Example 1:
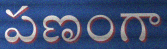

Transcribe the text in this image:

పణంగా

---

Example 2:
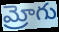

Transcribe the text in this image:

మ్రోగు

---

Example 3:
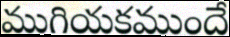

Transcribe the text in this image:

ముగియకముందే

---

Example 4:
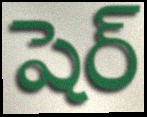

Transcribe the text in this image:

షెర్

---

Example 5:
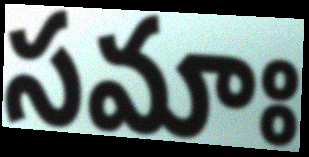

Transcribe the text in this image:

సమాః